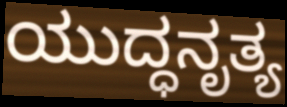
ಯುದ್ಧನೃತ್ಯ